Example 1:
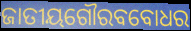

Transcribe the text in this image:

ଜାତୀୟଗୌରବବୋଧର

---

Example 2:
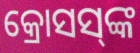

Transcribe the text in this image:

କ୍ରୋସସ୍‌ଙ୍କ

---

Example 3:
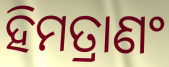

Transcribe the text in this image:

ହିମତ୍ରାଣଂ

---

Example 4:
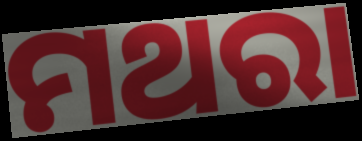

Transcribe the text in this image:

ମଥରା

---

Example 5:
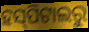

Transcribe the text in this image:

ହସ୍‌ପିଟାଲରୁ